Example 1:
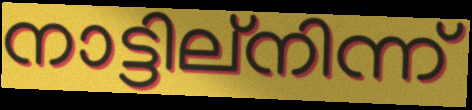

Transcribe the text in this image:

നാട്ടില്നിന്ന്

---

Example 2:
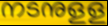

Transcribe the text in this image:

നടനുളള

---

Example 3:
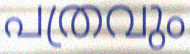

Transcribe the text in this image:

പത്രവും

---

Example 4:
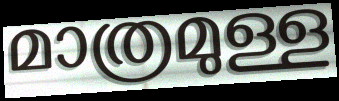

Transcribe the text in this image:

മാത്രമുള്ള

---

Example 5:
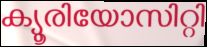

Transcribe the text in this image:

ക്യൂരിയോസിറ്റി